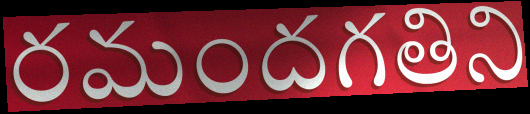
రమందగతిని